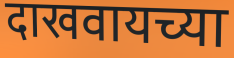
दाखवायच्या